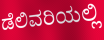
ಡೆಲಿವರಿಯಲ್ಲಿ